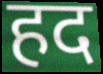
हद